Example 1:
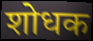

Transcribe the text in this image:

शोधक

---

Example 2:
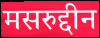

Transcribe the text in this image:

मसरुद्दीन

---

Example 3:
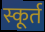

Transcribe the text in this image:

स्कूर्त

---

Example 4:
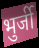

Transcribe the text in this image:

भुर्जी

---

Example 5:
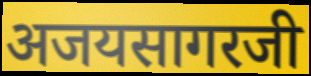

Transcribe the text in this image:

अजयसागरजी